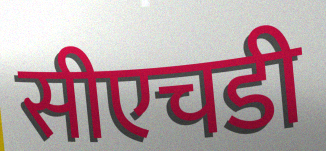
सीएचडी